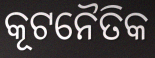
କୂଟନୈତିକ